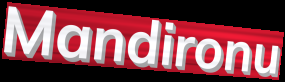
Mandironu